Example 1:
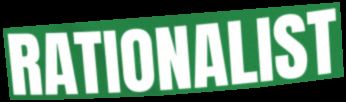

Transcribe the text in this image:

RATIONALIST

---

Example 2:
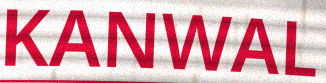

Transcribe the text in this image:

KANWAL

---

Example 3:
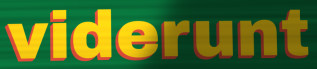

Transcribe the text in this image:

viderunt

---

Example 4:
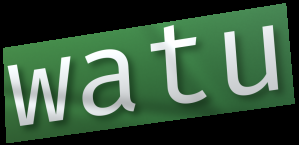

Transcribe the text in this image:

watu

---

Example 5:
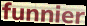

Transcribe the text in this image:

funnier